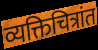
व्यक्तिचित्रांत